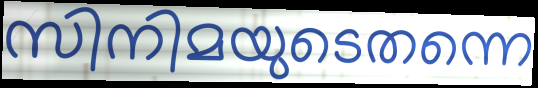
സിനിമയുടെതന്നെ